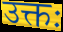
उक्तः